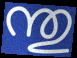
ന്തു